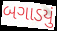
બગાડયું